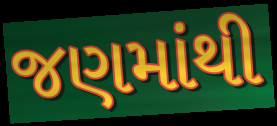
જણમાંથી